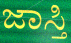
ಜಾಸ್ತಿ